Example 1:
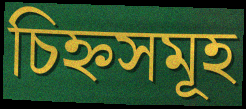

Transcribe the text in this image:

চিহ্নসমূহ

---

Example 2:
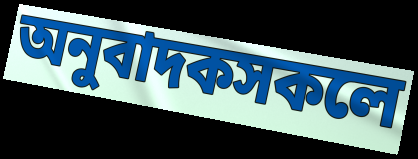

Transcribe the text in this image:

অনুবাদকসকলে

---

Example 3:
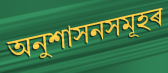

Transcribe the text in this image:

অনুশাসনসমূহৰ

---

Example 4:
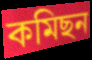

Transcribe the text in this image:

কমিছন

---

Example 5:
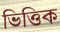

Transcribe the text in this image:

ভিত্তিক